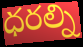
ధరల్ని